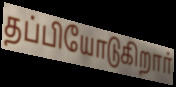
தப்பியோடுகிறார்